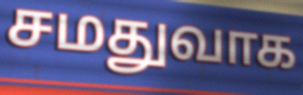
சமதுவாக